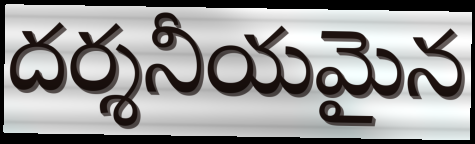
దర్శనీయమైన